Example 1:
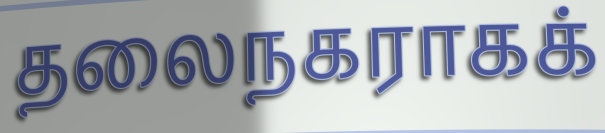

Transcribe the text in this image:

தலைநகராகக்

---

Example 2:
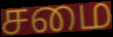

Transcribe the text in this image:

சமை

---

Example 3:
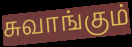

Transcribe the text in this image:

சுவாங்கும்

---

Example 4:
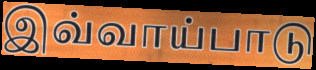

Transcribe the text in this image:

இவ்வாய்பாடு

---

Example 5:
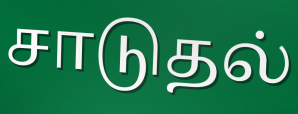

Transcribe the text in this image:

சாடுதல்